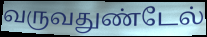
வருவதுண்டேல்